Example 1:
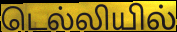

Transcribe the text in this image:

டெல்லியில்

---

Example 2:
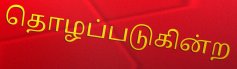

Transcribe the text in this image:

தொழப்படுகின்ற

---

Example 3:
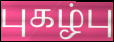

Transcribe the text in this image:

புகழ்பு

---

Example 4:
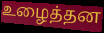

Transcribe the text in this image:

உழைத்தன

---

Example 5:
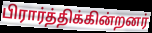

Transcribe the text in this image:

பிரார்த்திக்கின்றனர்